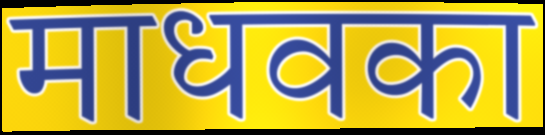
माधवका